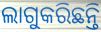
ଲାଗୁକରିଛନ୍ତି